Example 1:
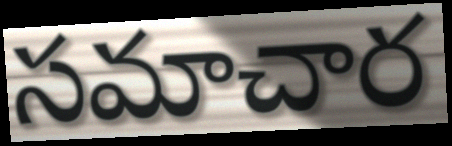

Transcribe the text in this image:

సమాచార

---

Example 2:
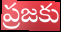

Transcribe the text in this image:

ప్రజకు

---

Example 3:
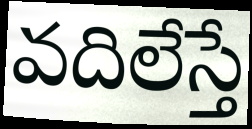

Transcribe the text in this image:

వదిలేస్తే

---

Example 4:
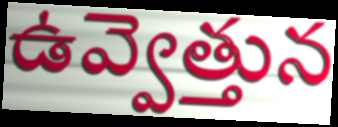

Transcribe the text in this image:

ఉవ్వెత్తున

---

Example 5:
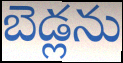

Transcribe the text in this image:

బెడ్లను